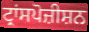
ਟ੍ਰਾਂਸਪੋਜ਼ੀਸ਼ਨ